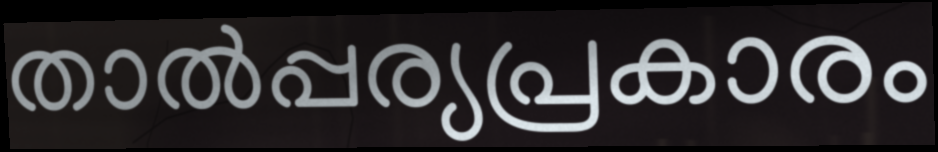
താൽപ്പര്യപ്രകാരം